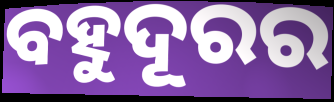
ବହୁଦୂରର